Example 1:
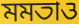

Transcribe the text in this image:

মমতাও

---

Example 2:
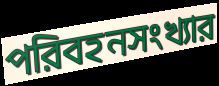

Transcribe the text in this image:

পরিবহনসংখ্যার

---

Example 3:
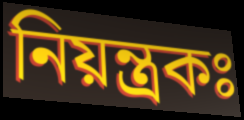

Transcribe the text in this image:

নিয়ন্ত্রকঃ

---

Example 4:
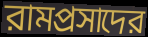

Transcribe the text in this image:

রামপ্রসাদের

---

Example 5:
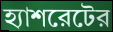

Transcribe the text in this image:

হ্যাশরেটের